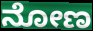
ನೋಣ